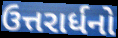
ઉત્તરાર્ધનો